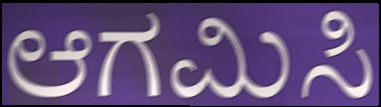
ಆಗಮಿಸಿ